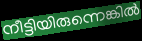
നീട്ടിയിരുന്നെങ്കിൽ